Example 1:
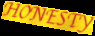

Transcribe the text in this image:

HONESTY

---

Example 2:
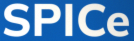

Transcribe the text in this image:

SPICe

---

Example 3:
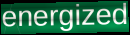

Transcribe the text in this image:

energized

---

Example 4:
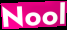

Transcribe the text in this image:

Nool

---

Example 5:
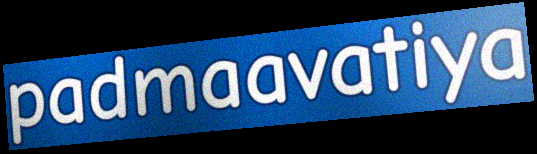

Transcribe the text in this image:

padmaavatiya